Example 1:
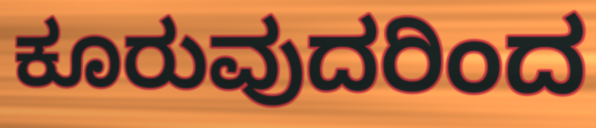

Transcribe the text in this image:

ಕೂರುವುದರಿಂದ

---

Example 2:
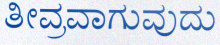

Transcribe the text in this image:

ತೀವ್ರವಾಗುವುದು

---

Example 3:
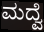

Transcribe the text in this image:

ಮದ್ವೆ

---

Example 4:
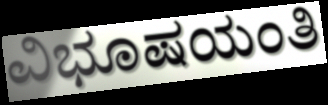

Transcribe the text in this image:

ವಿಭೂಷಯಂತಿ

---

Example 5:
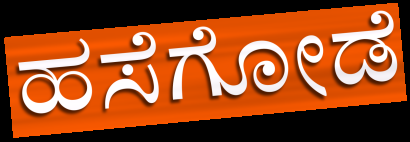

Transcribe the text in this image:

ಹಸೆಗೋಡೆ